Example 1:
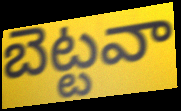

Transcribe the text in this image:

బెట్టవా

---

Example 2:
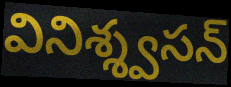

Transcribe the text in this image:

వినిశ్శ్వసన్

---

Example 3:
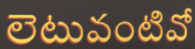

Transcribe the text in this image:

లెటువంటివో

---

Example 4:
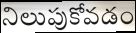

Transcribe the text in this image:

నిలుపుకోవడం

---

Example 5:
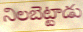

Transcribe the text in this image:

నిలబెట్టాడు